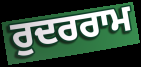
ਰੁਦਰਰਾਮ